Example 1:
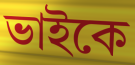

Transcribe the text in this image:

ভাইকে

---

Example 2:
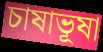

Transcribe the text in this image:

চাষাভূষা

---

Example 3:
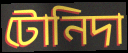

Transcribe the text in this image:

টোনিদা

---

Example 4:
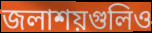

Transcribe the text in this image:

জলাশয়গুলিও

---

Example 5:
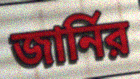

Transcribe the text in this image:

জার্নির